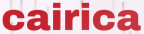
cairica